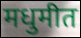
मधुमीत